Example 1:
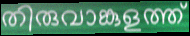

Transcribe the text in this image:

തിരുവാങ്കുളത്ത്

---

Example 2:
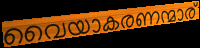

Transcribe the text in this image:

വൈയാകരണന്മാര്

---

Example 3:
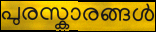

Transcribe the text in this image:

പുരസ്കാരങ്ങൾ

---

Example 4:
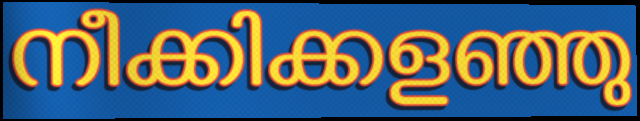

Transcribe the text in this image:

നീക്കിക്കളഞ്ഞു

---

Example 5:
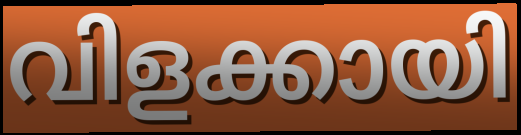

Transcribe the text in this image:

വിളക്കായി